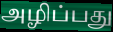
அழிப்பது